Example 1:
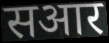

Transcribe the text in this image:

सआर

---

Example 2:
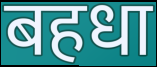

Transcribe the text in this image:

बहधा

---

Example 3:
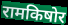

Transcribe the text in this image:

रामकिषोर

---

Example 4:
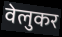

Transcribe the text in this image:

वेलुकर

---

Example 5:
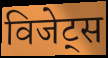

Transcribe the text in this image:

विजेट्स